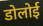
डोलोई